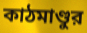
কাঠমাণ্ডুর